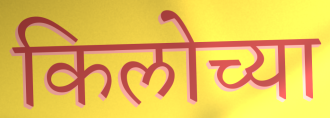
किलोच्या